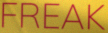
FREAK